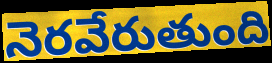
నెరవేరుతుంది